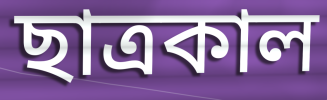
ছাত্রকাল